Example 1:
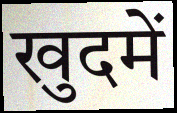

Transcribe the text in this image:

खुदमें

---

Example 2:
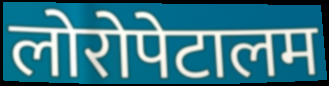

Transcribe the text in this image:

लोरोपेटालम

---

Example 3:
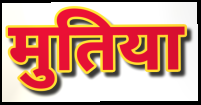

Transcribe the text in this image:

मुतिया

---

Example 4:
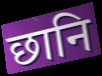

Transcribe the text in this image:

छानि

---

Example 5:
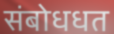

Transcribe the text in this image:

संबोधधत